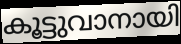
കൂട്ടുവാനായി